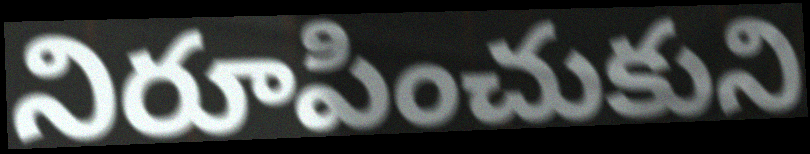
నిరూపించుకుని